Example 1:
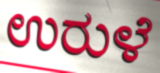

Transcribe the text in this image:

ಉರುಳೆ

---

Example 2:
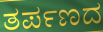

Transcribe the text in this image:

ತರ್ಪಣದ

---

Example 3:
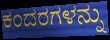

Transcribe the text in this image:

ಕಂದರಗಳನ್ನು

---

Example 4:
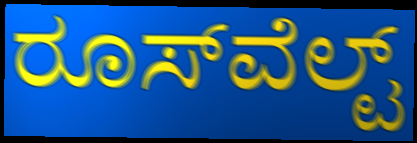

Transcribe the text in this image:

ರೂಸ್‍ವೆಲ್ಟ್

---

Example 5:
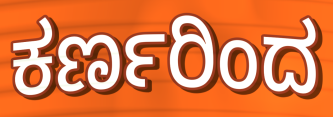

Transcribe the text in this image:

ಕರ್ಣರಿಂದ